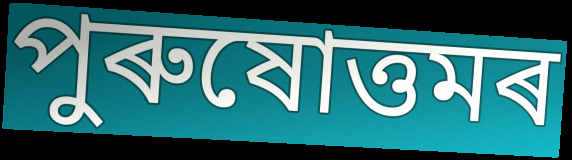
পুৰুষোত্তমৰ